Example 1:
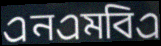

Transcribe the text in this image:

এনএমবিএ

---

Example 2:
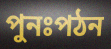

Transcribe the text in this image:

পুনঃপঠন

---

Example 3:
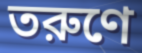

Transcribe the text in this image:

তরুণে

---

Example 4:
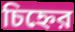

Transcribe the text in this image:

চিহ্নের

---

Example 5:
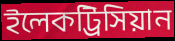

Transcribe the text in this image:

ইলেকট্রিসিয়ান